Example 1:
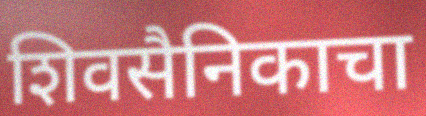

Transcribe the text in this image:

शिवसैनिकाचा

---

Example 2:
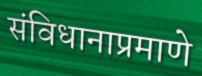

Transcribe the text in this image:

संविधानाप्रमाणे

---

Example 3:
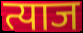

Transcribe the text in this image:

त्याज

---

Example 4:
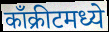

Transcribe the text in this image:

काँक्रीटमध्ये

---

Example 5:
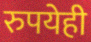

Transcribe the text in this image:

रुपयेही